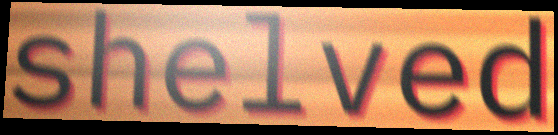
shelved